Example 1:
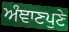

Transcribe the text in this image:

ਅੰਞਾਣਪੁਣੇ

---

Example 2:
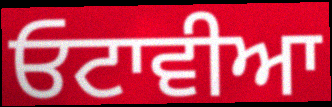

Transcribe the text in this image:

ਓਟਾਵੀਆ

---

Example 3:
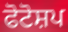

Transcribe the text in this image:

ਫੋਟੋਸ਼ਪ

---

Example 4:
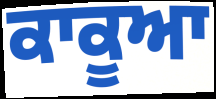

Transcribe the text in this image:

ਕਾਕੂਆ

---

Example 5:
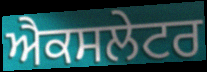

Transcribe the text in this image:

ਐਕਸਲੇਟਰ